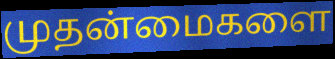
முதன்மைகளை